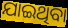
ଯାଇଥିବା